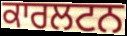
ਕਾਰਲਟਨ